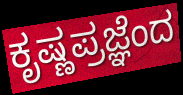
ಕೃಷ್ಣಪ್ರಜ್ಞೆಂದ